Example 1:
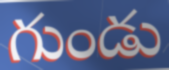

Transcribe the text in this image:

గుండు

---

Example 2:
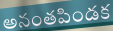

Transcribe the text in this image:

అనంతపిండక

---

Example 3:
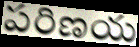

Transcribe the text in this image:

పరిణయ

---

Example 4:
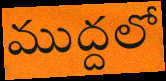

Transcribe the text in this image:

ముద్దలో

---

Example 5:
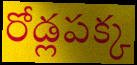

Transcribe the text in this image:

రోడ్లపక్క